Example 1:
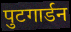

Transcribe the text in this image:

पुटगार्डन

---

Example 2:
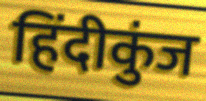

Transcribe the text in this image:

हिंदीकुंज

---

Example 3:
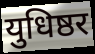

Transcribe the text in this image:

युधिष्ठर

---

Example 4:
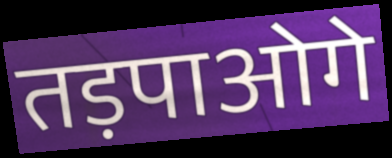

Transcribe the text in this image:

तड़पाओगे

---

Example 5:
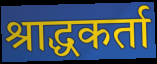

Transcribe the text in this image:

श्राद्धकर्ता